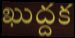
ఖుద్దక